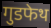
गुडफेथ